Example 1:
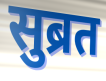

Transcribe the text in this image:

सुब्रत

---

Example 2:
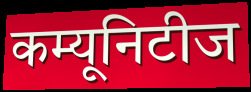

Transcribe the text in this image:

कम्यूनिटीज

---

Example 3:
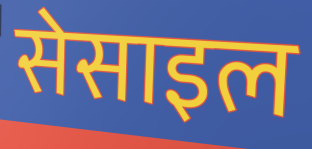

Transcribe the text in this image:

सेसाइल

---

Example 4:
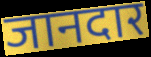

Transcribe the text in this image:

जानदार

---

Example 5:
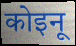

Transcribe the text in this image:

कोइनू